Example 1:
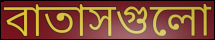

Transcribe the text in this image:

বাতাসগুলো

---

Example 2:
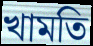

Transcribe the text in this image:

খামতি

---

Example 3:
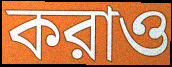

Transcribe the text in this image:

করাও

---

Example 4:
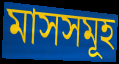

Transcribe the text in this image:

মাসসমূহ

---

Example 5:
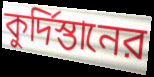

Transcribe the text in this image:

কুর্দিস্তানের